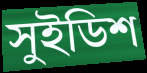
সুইডিশ